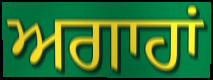
ਅਗਾਹਾਂ